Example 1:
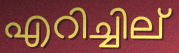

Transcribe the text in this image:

എറിച്ചില്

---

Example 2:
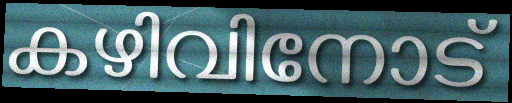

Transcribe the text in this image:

കഴിവിനോട്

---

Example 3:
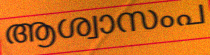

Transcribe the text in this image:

ആശ്വാസംപ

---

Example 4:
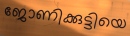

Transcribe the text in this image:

ജോണിക്കുട്ടിയെ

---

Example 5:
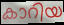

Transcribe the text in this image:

കാറിയ